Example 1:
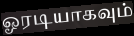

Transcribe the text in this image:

ஓரடியாகவும்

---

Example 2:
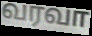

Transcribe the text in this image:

வரவா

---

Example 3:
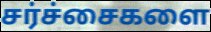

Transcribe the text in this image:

சர்ச்சைகளை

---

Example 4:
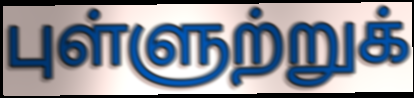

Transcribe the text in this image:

புள்ளுற்றுக்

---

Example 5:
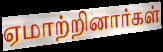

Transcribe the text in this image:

ஏமாற்றினார்கள்